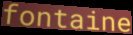
fontaine